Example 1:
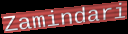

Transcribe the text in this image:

Zamindari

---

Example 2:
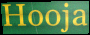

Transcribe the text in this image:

Hooja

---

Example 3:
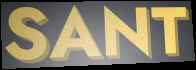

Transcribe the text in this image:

SANT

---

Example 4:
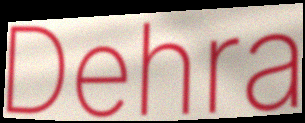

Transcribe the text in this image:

Dehra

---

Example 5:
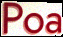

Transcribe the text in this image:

Poa